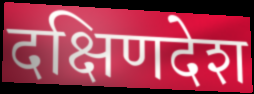
दक्षिणदेश